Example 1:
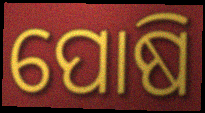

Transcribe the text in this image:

ପୋଷି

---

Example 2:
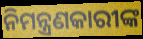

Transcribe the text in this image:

ନିମନ୍ତ୍ରଣକାରୀଙ୍କ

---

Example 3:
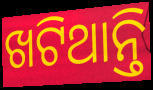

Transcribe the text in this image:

ଖଟିଥାନ୍ତି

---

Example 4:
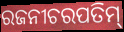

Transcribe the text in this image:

ରଜନୀଚରପତିମ୍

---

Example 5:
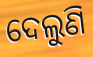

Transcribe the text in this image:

ଦେଲୁଣି